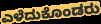
ಎಳೆದುಕೊಂಡರು